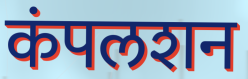
कंपलशन